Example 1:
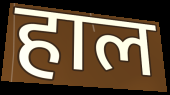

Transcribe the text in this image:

हाल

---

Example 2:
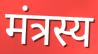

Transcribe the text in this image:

मंत्रस्य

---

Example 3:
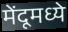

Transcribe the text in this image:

मेंदूमध्ये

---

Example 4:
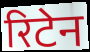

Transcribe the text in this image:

रिटेन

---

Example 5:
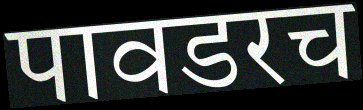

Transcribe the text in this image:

पावडरच